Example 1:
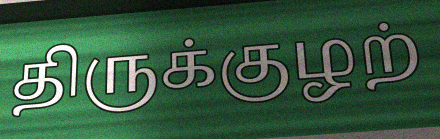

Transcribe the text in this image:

திருக்குழற்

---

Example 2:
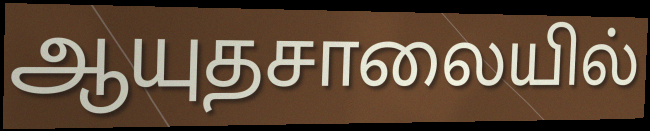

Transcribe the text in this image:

ஆயுதசாலையில்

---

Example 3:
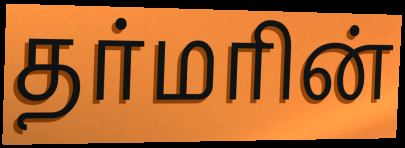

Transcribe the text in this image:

தர்மரின்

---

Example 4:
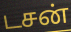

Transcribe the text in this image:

டசன்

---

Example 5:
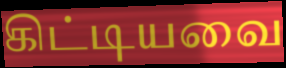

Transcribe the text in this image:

கிட்டியவை